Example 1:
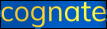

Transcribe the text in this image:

cognate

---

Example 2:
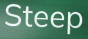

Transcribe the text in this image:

Steep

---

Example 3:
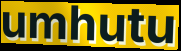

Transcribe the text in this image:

umhutu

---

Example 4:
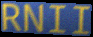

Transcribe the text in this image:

RNII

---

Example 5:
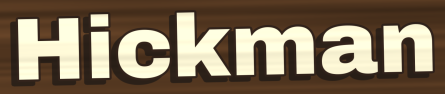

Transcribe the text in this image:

Hickman